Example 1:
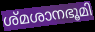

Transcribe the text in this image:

ശ്മശാനഭൂമി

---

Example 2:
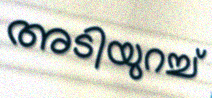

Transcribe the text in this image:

അടിയുറച്ച്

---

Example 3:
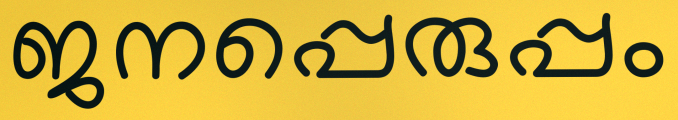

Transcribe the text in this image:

ജനപ്പെരുപ്പം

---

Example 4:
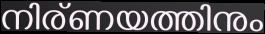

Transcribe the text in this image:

നിര്ണയത്തിനും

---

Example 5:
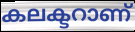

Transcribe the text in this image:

കലക്ടറാണ്